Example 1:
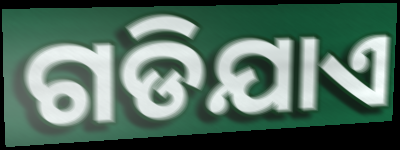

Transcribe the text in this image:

ଗଡିଯାଏ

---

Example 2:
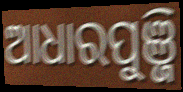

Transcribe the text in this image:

ଆଧାରପୁଞ୍ଜି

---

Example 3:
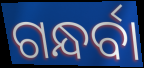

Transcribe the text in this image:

ଗନ୍ଧର୍ବା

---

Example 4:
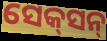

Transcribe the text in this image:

ସେକ୍‌ସନ୍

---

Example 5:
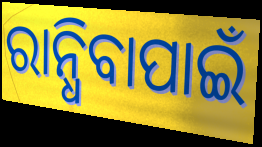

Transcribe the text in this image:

ରାନ୍ଧିବାପାଇଁ